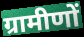
ग्रामीणों